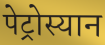
पेट्रोस्यान